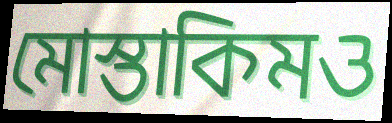
মোস্তাকিমও